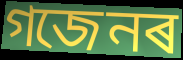
গজেনৰ